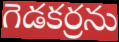
గెడకర్రను